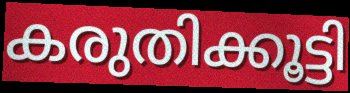
കരുതിക്കൂട്ടി